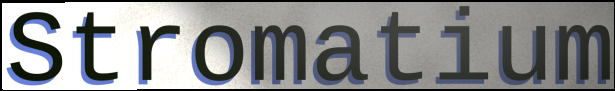
Stromatium